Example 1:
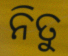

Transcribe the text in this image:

ନିତୁ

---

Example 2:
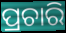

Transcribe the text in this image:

ପ୍ରଚାରି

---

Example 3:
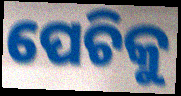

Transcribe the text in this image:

ପେଚିକୁ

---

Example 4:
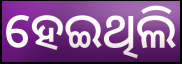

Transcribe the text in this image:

ହେଇଥିଲି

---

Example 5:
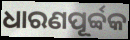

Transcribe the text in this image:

ଧାରଣପୂର୍ବ୍ବକ